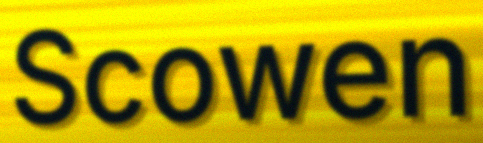
Scowen